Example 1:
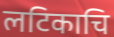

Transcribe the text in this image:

लटिकाचि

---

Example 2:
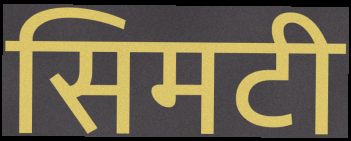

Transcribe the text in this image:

सिमटी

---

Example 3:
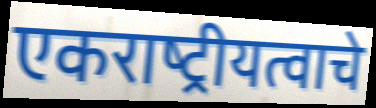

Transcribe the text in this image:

एकराष्ट्रीयत्वाचे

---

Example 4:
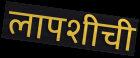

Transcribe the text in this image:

लापशीची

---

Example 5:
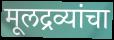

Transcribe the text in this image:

मूलद्रव्यांचा